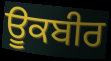
ਊਕਬੀਰ